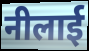
नीलाई